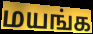
மயங்க